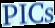
PICs